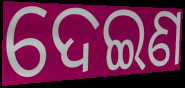
ଦେଇଣ